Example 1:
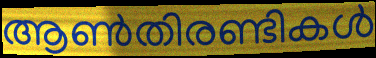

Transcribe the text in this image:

ആൺതിരണ്ടികൾ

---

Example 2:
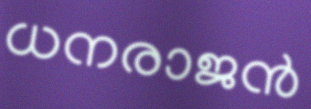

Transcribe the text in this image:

ധനരാജൻ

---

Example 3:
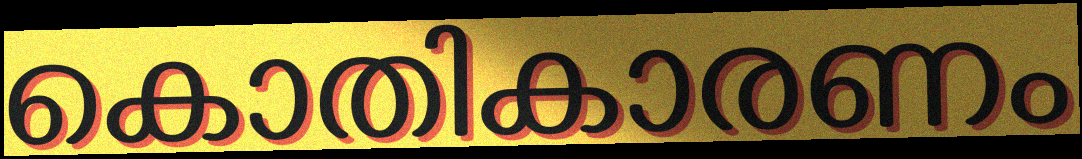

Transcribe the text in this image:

കൊതികാരണം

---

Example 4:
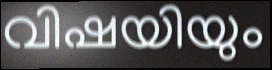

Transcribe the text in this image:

വിഷയിയും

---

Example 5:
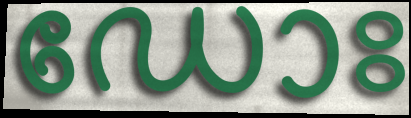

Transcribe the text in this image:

ഡോഃ